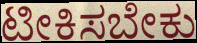
ಟೀಕಿಸಬೇಕು